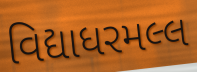
વિદ્યાધરમલ્લ